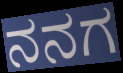
ನನಗ